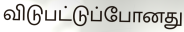
விடுபட்டுப்போனது